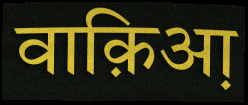
वाक़िआ़